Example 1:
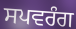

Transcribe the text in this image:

ਸਪਵਰੰਗ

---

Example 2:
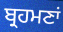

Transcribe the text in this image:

ਬ੍ਰਹਮਣਾਂ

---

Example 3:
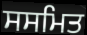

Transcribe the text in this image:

ਸਸਮਿਤ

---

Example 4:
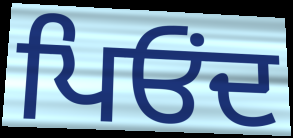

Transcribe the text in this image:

ਪਿਓਂਦ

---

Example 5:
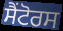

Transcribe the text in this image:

ਸੈਂਟੋਰਸ